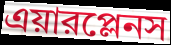
এয়ারপ্লেনস